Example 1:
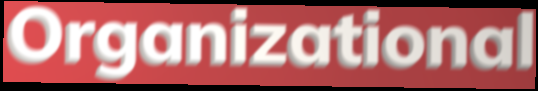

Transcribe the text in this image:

Organizational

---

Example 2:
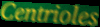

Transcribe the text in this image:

Centrioles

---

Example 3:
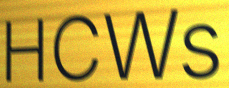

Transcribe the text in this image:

HCWs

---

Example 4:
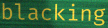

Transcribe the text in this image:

blacking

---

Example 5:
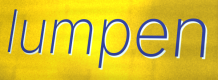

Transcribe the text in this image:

lumpen